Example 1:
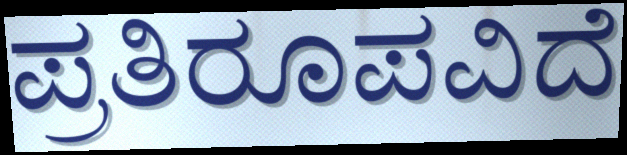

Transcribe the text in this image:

ಪ್ರತಿರೂಪವಿದೆ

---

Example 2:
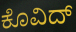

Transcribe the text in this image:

ಕೊವಿದ್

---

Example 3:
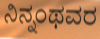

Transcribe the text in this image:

ನಿನ್ನಂಥವರ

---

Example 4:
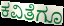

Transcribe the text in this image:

ಕವಿತೆಗೂ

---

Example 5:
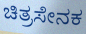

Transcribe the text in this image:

ಚಿತ್ರಸೇನಕ